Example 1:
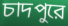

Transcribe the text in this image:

চাদপুরে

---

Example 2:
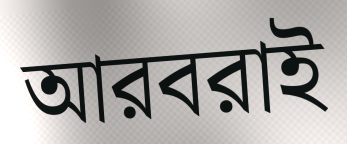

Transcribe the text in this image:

আরবরাই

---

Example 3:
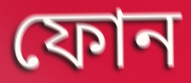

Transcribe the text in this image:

ফোন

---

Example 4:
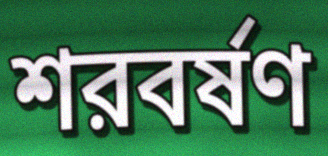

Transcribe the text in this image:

শরবর্ষণ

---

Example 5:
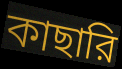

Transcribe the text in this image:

কাছারি